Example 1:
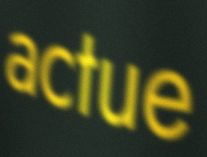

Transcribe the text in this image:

actue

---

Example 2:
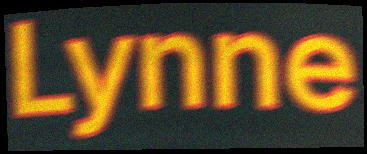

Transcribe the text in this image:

Lynne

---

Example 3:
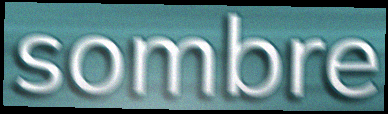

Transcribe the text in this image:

sombre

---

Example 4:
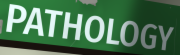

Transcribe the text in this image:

PATHOLOGY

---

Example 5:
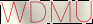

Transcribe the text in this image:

WDMU